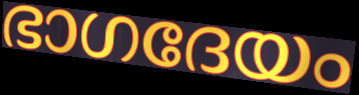
ഭാഗദേയം